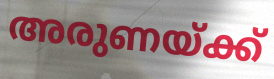
അരുണയ്ക്ക്